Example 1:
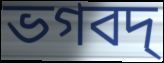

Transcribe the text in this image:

ভগবদ্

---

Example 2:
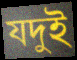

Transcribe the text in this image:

যদুই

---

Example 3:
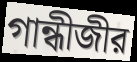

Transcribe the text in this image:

গান্ধীজীর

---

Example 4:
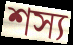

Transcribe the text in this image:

শস্য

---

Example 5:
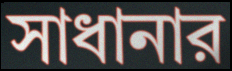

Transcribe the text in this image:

সাধানার